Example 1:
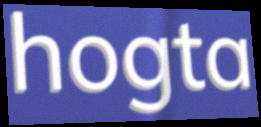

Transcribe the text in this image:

hogta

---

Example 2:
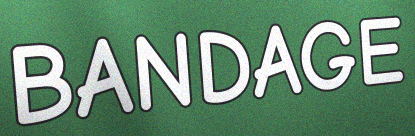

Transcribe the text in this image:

BANDAGE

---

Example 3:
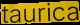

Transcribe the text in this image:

taurica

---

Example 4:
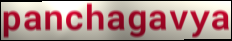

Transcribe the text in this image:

panchagavya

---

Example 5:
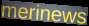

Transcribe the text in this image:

merinews